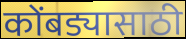
कोंबड्यासाठी